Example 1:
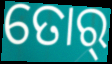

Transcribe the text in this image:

ତୋର୍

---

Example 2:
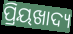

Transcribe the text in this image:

ପ୍ରିୟଖାଦ୍ୟ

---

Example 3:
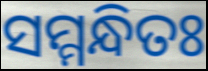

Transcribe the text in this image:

ସମ୍ମନ୍ଧିତଃ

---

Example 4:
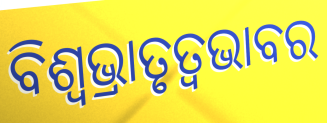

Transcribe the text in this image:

ବିଶ୍ଵଭ୍ରାତୃତ୍ୱଭାବର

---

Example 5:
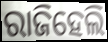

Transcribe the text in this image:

ରାଜିହେଲି